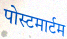
पोस्‍टमार्टम